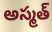
అస్మత్